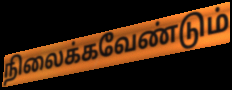
நிலைக்கவேண்டும்